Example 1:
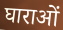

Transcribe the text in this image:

घाराओं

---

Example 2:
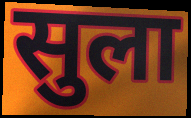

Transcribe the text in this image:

सुला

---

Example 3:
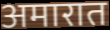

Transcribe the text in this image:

अमारात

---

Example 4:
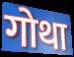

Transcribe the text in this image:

गोथा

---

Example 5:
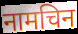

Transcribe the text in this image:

नामचिन